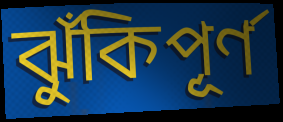
ঝুঁকিপূর্ণ